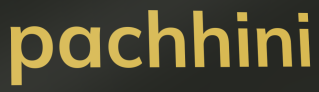
pachhini